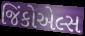
જિંકોએલ્સ